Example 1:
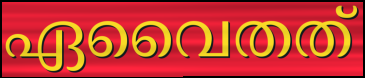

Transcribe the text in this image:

ഏവൈതത്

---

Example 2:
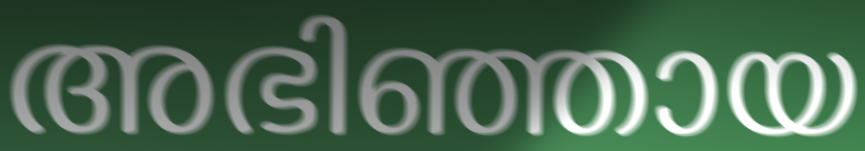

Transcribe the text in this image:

അഭിഞ്ഞായ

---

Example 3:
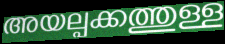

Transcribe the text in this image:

അയല്പക്കത്തുള്ള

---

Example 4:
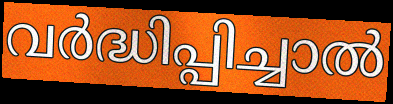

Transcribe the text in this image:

വർദ്ധിപ്പിച്ചാൽ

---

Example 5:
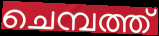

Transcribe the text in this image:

ചെമ്പത്ത്